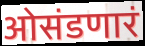
ओसंडणारं